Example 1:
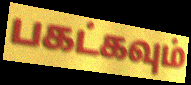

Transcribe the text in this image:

பகட்கவும்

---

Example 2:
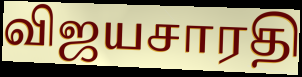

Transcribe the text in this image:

விஜயசாரதி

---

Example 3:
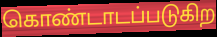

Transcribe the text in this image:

கொண்டாடப்படுகிற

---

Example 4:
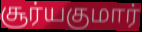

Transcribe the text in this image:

சூர்யகுமார்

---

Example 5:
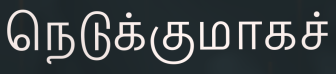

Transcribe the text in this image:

நெடுக்குமாகச்